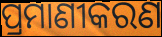
ପ୍ରମାଣୀକରଣ